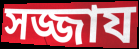
সজ্জায